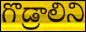
గొడ్రాలిని